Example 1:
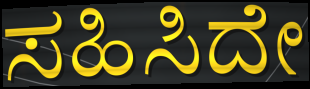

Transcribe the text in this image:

ಸಹಿಸಿದೇ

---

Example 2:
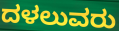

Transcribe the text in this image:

ದಳಲುವರು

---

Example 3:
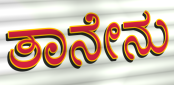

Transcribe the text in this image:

ತಾನೇನು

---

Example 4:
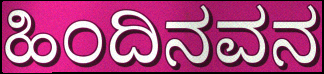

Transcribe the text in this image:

ಹಿಂದಿನವನ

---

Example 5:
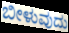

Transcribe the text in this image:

ಬೀಳುವುದು